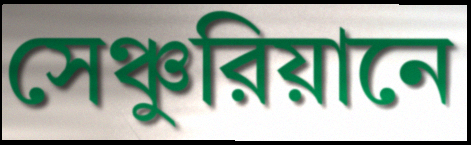
সেঞ্চুরিয়ানে